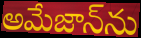
అమేజాన్‌ను